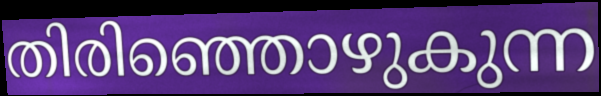
തിരിഞ്ഞൊഴുകുന്ന